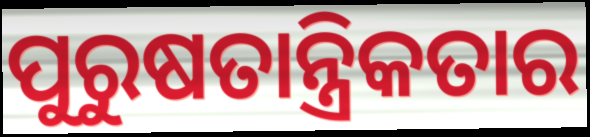
ପୁରୁଷତାନ୍ତ୍ରିକତାର